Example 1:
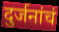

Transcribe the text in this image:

दुर्जनांचं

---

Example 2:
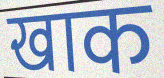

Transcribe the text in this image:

खाक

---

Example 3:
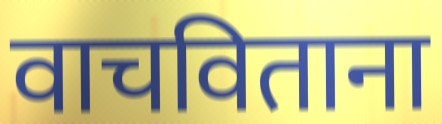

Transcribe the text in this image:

वाचविताना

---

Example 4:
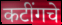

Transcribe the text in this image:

कटींगचे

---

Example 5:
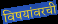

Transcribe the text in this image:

विषयांवरची